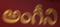
అంగీని